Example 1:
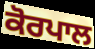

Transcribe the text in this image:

ਕੋਰਪਾਲ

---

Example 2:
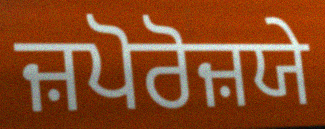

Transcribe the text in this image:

ਜ਼ਪੋਰੋਜ਼ਯੇ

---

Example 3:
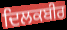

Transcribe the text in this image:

ਦਿਲਕਬੀਰ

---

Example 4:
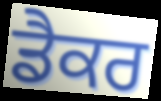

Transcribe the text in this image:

ਡੈਕਰ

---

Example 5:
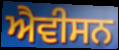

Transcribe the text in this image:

ਐਵੀਸਨ